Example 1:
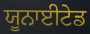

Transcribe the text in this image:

ਯੂਨਾਈਟੇਡ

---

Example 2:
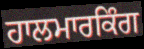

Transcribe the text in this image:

ਹਾਲਮਾਰਕਿੰਗ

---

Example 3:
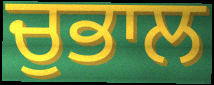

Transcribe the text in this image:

ਚੁਭਾਲ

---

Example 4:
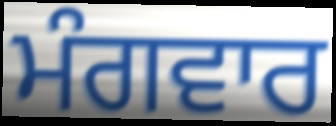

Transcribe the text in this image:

ਮੰਗਵਾਰ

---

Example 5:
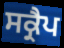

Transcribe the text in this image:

ਸਕ੍ਰੈਪ